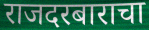
राजदरबाराचा